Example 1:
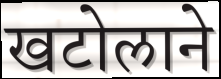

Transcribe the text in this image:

खटोलाने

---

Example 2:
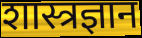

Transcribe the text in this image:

शास्त्रज्ञान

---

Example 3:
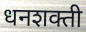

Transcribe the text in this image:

धनशक्ती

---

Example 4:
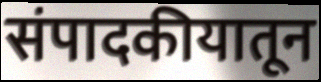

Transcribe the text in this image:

संपादकीयातून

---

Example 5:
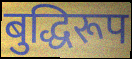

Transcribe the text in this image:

बुद्धिरूप